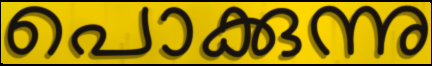
പൊക്കുന്നു